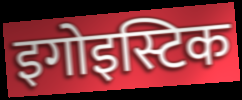
इगोइस्टिक